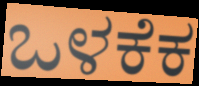
ಒಳಕೆಕ